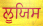
ਲੂਯਿਸ